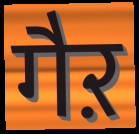
गैऱ